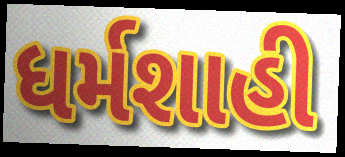
ધર્મશાહી